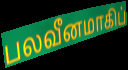
பலவீனமாகிப்